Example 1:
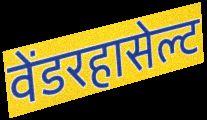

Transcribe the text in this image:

वेंडरहासेल्ट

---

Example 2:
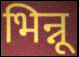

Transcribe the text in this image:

भिन्नू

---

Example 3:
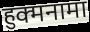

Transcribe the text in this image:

हुक्मनामा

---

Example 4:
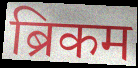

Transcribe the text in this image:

ब्रिकम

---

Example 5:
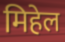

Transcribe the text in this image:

मिहेल